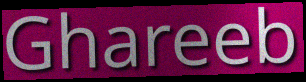
Ghareeb